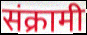
संक्रामी